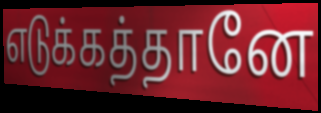
எடுக்கத்தானே